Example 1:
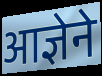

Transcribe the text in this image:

आज्ञेने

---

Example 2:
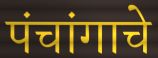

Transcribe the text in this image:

पंचांगाचे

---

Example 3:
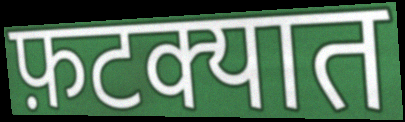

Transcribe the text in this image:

फ़टक्यात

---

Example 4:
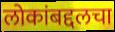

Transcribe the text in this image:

लोकांबद्दलचा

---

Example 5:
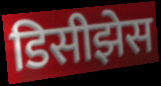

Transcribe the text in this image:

डिसीझेस